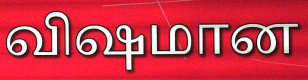
விஷமான